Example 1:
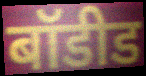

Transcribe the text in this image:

बॉडीड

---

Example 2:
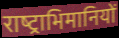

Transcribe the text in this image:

राष्ट्राभिमानियों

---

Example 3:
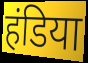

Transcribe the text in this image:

हंडिया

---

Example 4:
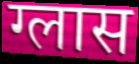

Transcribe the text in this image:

ग्लास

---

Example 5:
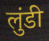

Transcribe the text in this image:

लुंडी